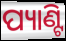
ପ୍ୟାଣ୍ଟି